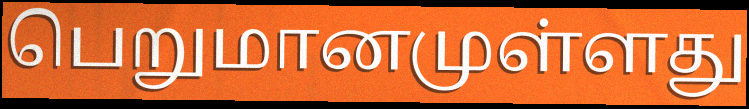
பெறுமானமுள்ளது